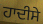
ਹਾਦੀਸੇ